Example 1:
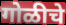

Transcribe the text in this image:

गोळीचे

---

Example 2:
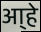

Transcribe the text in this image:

आ्हे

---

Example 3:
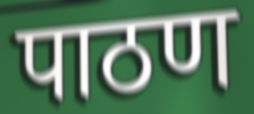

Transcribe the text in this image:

पाठण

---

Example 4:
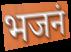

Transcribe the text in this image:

भजनं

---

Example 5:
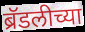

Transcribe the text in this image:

ब्रॅडलीच्या